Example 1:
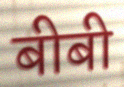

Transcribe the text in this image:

बीबी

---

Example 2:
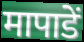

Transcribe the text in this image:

मापाडें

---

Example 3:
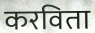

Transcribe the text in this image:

करविता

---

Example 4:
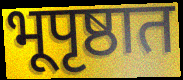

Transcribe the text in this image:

भूपृष्ठात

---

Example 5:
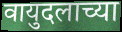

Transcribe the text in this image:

वायुदलाच्या